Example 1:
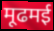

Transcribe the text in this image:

मूढमई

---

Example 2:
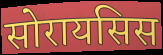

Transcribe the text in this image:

सोरायसिस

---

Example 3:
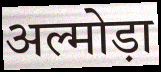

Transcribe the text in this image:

अल्मोड़ा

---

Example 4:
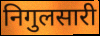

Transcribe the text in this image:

निगुलसारी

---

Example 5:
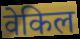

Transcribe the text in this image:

वेकिल